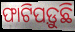
ଫାଟିପଡ଼ୁଛି